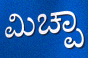
ಮಿಚ್ಪಾ